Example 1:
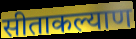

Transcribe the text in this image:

सीताकल्याण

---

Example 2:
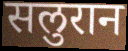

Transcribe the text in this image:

सलुरान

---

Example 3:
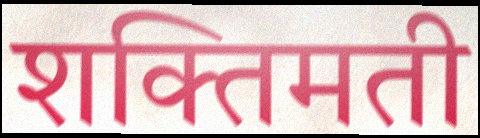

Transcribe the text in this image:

शक्तिमती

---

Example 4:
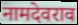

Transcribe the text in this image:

नामदेवराव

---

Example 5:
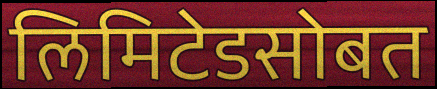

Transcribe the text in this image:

लिमिटेडसोबत